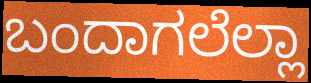
ಬಂದಾಗಲೆಲ್ಲಾ